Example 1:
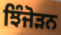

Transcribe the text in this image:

ਝਿੰਜੋੜਨ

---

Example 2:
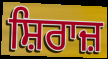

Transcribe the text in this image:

ਸ਼ਿਰਾਜ਼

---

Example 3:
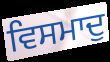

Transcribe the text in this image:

ਵਿਸਮਾਦੁ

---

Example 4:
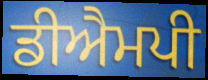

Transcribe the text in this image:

ਡੀਐਮਪੀ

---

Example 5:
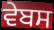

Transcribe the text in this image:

ਵੇਬਸ